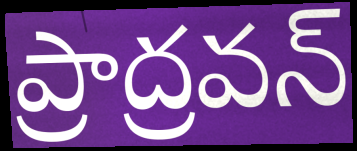
ప్రాద్రవన్